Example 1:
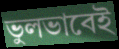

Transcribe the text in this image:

ভুলভাবেই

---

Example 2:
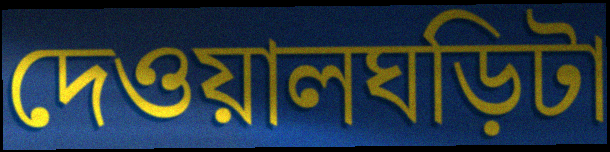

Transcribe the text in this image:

দেওয়ালঘড়িটা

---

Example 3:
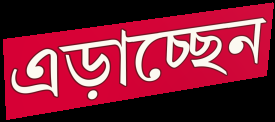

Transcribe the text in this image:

এড়াচ্ছেন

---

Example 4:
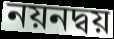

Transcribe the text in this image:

নয়নদ্বয়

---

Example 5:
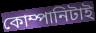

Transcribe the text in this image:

কোম্পানিটাই